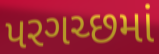
પરગચ્છમાં